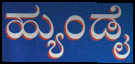
ಹ್ಯುಂಡೈ